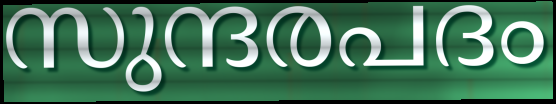
സുന്ദരപദം